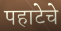
पहाटेचे